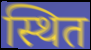
स्थित